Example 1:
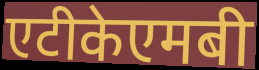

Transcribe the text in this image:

एटीकेएमबी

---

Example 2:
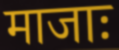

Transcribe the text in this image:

माजाः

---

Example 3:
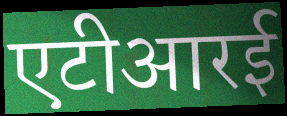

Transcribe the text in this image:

एटीआरई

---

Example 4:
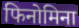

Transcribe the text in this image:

फिनोमिना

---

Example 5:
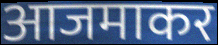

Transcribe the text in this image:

आजमाकर